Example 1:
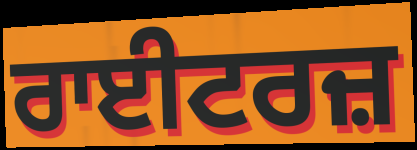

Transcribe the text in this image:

ਰਾਈਟਰਜ਼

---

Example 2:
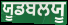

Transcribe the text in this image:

ਯੂਡਬਲਯੂ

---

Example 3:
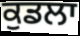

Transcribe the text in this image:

ਕੁਡਲਾ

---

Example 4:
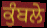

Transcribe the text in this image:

ਕੁੰਬਲੇ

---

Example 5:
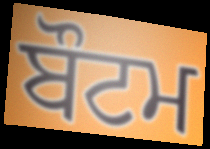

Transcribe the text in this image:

ਬੌਟਮ